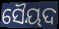
ସୈୟଦ